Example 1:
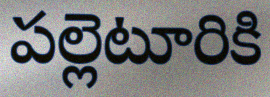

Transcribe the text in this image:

పల్లెటూరికి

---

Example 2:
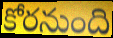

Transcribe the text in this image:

కోరనుంది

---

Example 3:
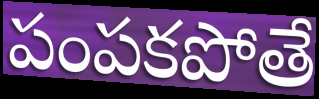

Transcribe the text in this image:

పంపకపోతే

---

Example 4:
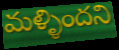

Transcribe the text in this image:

మళ్ళిందని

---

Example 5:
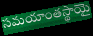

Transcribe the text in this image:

సమయాంతస్థాయై